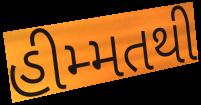
હીમ્મતથી